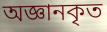
অজ্ঞানকৃত